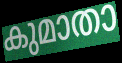
കുമാതാ